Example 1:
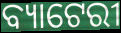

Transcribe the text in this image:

ବ୍ୟାଟେରୀ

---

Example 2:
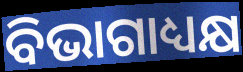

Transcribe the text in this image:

ବିଭାଗାଧ୍ୟକ୍ଷ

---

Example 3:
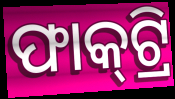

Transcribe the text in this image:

ଫାକ୍‍ଟ୍ରି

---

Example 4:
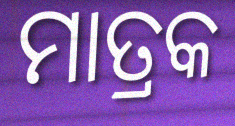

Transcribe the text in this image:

ମାତ୍ରକ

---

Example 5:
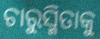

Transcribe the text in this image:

ଚାରୁସ୍ମିତାକୁ